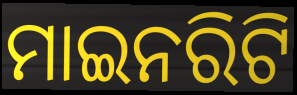
ମାଇନରିଟି